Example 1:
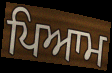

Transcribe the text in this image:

ਪਿਆਮ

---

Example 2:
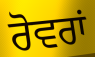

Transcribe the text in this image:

ਰੋਵਰਾਂ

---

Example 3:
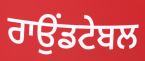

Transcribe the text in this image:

ਰਾਉਂਡਟੇਬਲ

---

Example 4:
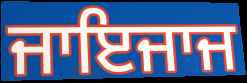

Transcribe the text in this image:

ਜਾਇਜਾਜ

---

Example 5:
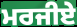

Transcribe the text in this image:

ਮਰਜੀਏ